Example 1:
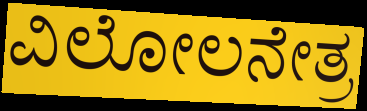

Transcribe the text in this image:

ವಿಲೋಲನೇತ್ರ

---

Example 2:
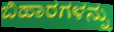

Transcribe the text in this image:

ಬಿಹಾರಗಳನ್ನು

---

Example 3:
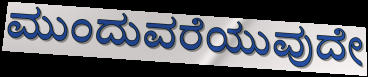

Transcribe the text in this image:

ಮುಂದುವರೆಯುವುದೇ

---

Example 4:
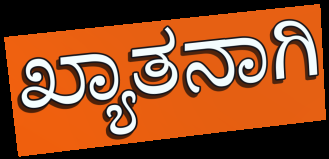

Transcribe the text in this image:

ಖ್ಯಾತನಾಗಿ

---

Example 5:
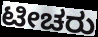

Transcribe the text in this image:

ಟೀಚರು